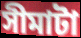
সীমাটা